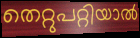
തെറ്റുപറ്റിയാൽ